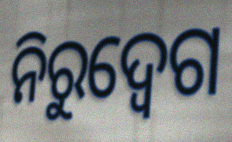
ନିରୁଦ୍ବେଗ